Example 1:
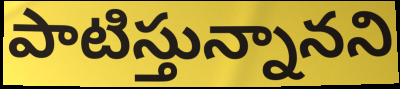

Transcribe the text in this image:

పాటిస్తున్నానని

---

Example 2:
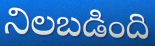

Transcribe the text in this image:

నిలబడింది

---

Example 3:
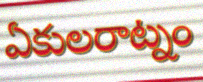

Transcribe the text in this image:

ఏకులరాట్నం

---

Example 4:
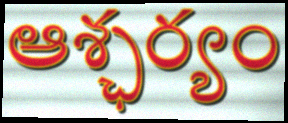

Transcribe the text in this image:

ఆశ్ఛర్యం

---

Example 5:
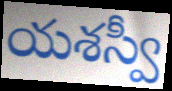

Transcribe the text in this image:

యశస్వీ